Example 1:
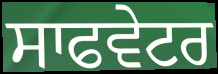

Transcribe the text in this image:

ਸਾਫਵੇਟਰ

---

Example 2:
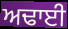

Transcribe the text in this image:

ਅਢਾਈ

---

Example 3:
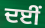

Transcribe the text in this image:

ਦਈਂ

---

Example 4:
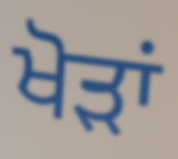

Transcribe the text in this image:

ਖੋੜਾਂ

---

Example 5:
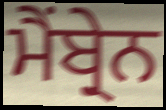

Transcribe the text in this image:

ਮੈਂਬ੍ਰੇਨ